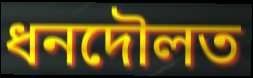
ধনদৌলত